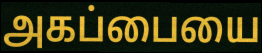
அகப்பையை